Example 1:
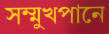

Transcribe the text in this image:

সম্মুখপানে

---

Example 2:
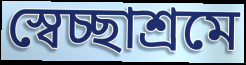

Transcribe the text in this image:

স্বেচ্ছাশ্রমে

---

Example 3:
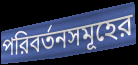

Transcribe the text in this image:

পরিবর্তনসমূহের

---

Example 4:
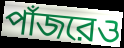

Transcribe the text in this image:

পাঁজরেও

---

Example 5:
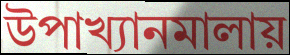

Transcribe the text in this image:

উপাখ্যানমালায়